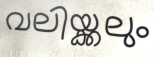
വലിയ്ക്കലും